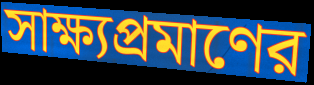
সাক্ষ্যপ্রমাণের